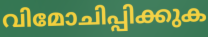
വിമോചിപ്പിക്കുക